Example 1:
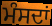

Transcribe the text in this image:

ਮੰਸਦਾਂ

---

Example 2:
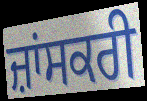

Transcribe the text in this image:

ਜ਼ਾਂਸਕਰੀ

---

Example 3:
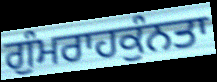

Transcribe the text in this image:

ਗੁੰਮਰਾਹਕੁੰਨਤਾ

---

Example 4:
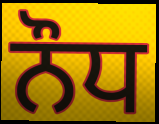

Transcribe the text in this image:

ਨੌਧ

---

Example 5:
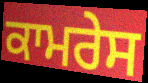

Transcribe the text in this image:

ਕਾਮਰੇਸ